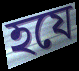
হযে